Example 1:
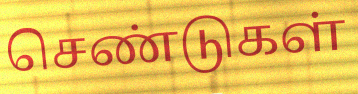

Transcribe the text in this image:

செண்டுகள்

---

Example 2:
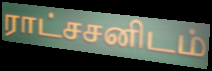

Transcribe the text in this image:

ராட்சசனிடம்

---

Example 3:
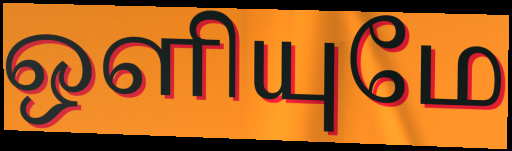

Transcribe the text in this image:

ஒளியுமே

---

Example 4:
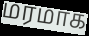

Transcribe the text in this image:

மரமாக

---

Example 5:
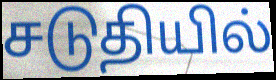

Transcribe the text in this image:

சடுதியில்